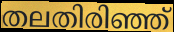
തലതിരിഞ്ഞ്